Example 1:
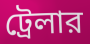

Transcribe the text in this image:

ট্রেলার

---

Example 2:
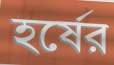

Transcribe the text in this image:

হর্ষের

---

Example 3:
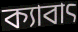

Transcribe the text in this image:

ক্যাবাৎ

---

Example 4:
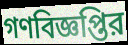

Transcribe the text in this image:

গণবিজ্ঞপ্তির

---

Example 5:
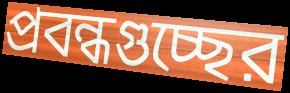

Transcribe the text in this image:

প্রবন্ধগুচ্ছের